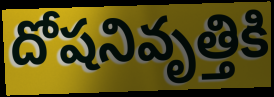
దోషనివృత్తికి